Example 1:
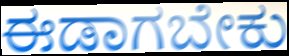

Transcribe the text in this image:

ಈಡಾಗಬೇಕು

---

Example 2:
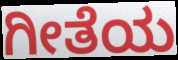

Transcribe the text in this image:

ಗೀತೆಯ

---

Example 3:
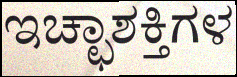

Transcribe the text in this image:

ಇಚ್ಛಾಶಕ್ತಿಗಳ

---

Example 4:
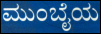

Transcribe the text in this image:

ಮುಂಬೈಯ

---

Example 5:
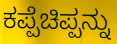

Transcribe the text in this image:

ಕಪ್ಪೆಚಿಪ್ಪನ್ನು